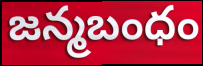
జన్మబంధం